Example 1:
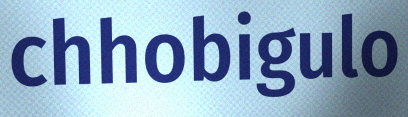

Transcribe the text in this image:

chhobigulo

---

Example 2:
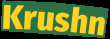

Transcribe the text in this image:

Krushn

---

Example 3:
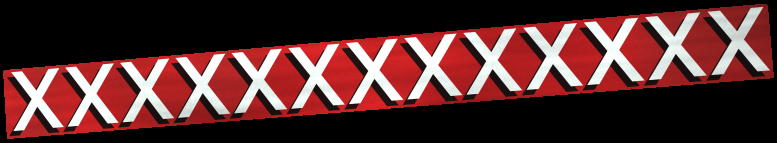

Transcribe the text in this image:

xxxxxxxxxxxxx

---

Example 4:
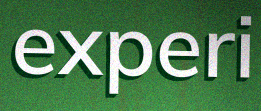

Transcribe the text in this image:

experi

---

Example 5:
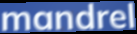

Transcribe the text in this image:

mandrel